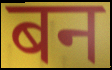
बन